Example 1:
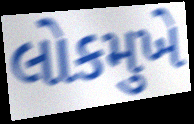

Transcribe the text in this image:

લોકમુખે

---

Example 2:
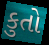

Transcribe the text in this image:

કુતો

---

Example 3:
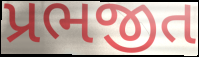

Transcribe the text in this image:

પ્રભજીત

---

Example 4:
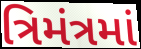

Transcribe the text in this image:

ત્રિમંત્રમાં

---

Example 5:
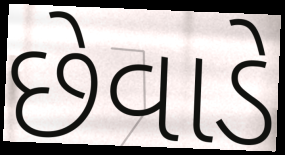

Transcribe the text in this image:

છેવાડે